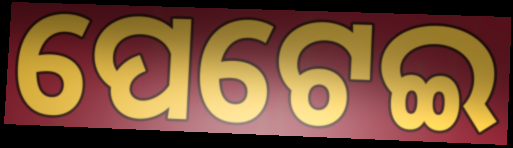
ପେଟେଇ